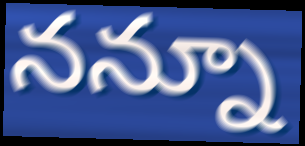
నన్నూ